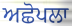
ਅਛੋਪਲਾ